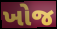
ખોજ